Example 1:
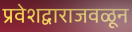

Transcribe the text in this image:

प्रवेशद्वाराजवळून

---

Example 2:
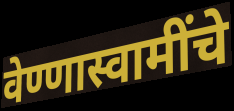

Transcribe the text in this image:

वेण्णास्वामींचे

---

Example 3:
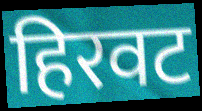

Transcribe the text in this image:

हिरवट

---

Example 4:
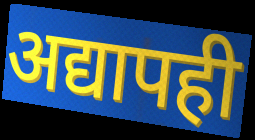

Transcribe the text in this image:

अद्यापही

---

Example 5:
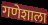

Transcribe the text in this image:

गणेशाला